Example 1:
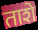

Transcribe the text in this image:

ताशे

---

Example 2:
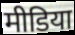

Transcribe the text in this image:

मीडिया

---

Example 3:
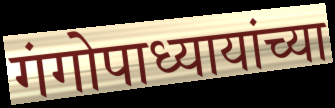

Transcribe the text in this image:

गंगोपाध्यायांच्या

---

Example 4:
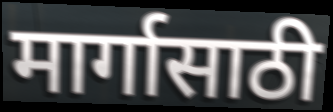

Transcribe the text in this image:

मार्गासाठी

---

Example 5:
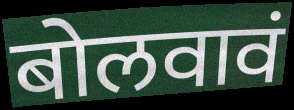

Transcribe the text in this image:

बोलवावं